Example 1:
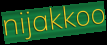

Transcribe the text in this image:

nijakkoo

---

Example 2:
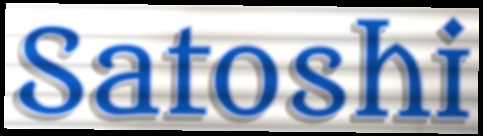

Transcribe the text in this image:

Satoshi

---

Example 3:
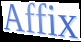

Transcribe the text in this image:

Affix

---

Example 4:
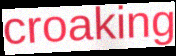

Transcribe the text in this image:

croaking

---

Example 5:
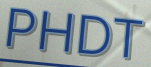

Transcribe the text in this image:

PHDT